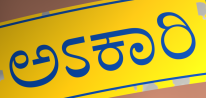
ಅಽಕಾರಿ